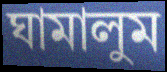
ঘামালুম